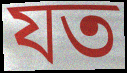
যত